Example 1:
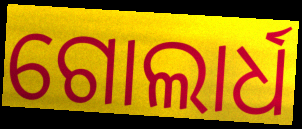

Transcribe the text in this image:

ଗୋଲାର୍ଧ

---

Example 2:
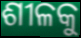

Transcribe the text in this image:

ଶୀଳକୁ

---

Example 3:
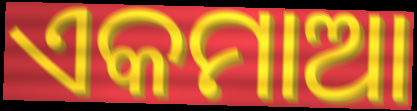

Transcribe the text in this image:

ଏକମାଆ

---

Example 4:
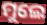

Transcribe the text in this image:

ମୁଲେ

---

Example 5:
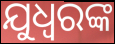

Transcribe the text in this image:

ଯୁଧ୍ଵରଙ୍କ